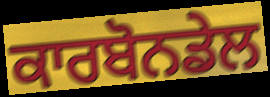
ਕਾਰਬੋਨਡੇਲ